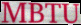
MBTU